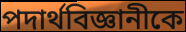
পদার্থবিজ্ঞানীকে